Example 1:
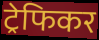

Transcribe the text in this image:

ट्रेफिकर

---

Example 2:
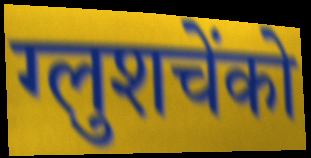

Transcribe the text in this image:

ग्लुशचेंको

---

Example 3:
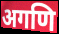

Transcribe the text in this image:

अगणि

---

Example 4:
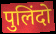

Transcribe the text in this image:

पुलिंदो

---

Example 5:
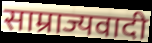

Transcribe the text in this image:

साम्राज्‍यवादी